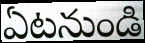
ఏటనుండి